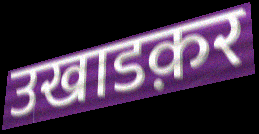
उखाडक़र